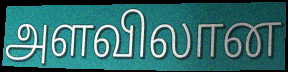
அளவிலான